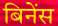
बिनेंस